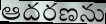
ఆదరణను